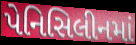
પેનિસિલીનમાં